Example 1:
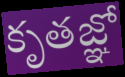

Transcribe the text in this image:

కృతజ్ఞో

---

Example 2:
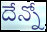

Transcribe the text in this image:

దేన్నో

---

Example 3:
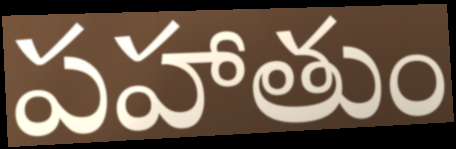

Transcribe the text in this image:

పహాతుం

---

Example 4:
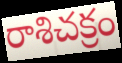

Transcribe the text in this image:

రాశిచక్రం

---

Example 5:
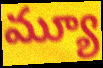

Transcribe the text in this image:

మ్యూ